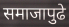
समाजापुढे